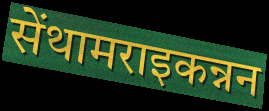
सेंथामराइकन्नन